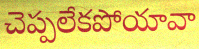
చెప్పలేకపోయావా